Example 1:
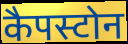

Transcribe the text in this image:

कैपस्टोन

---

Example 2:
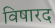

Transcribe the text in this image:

विषारद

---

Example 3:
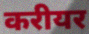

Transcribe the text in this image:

करीयर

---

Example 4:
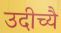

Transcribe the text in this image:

उदीच्यै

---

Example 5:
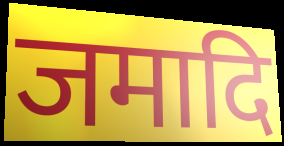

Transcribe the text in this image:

जमादि